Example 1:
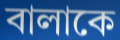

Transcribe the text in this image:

বালাকে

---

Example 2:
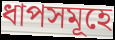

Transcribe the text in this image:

ধাপসমূহে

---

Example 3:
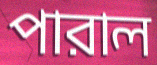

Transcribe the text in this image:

পারাল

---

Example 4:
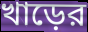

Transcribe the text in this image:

খাড়ের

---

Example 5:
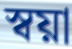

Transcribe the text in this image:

স্বয়া